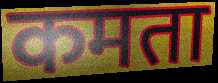
कमता